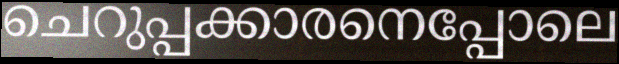
ചെറുപ്പക്കാരനെപ്പോലെ